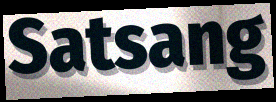
Satsang